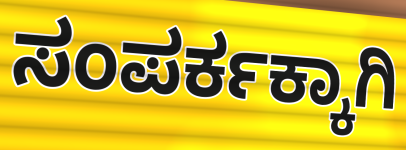
ಸಂಪರ್ಕಕ್ಕಾಗಿ